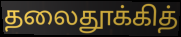
தலைதூக்கித்